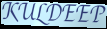
KULDEEP